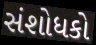
સંશોધકો